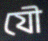
যৌ